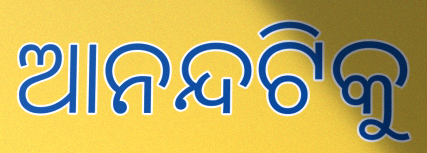
ଆନନ୍ଦଟିକୁ